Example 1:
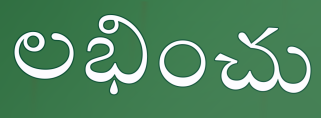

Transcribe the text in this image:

లభించు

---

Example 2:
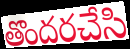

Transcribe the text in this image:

తొందరచేసి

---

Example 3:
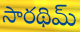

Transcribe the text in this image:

సారథిమ్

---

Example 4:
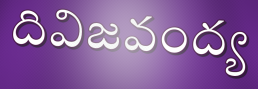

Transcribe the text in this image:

దివిజవంద్య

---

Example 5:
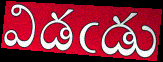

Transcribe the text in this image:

విడఁడు